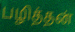
பழித்தன்